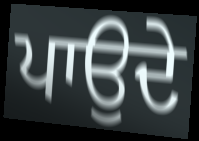
ਪਾਉਦੇ